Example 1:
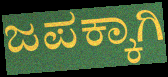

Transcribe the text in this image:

ಜಪಕ್ಕಾಗಿ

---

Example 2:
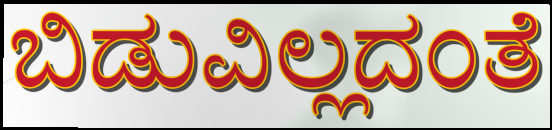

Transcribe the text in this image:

ಬಿಡುವಿಲ್ಲದಂತೆ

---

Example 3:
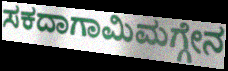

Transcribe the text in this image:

ಸಕದಾಗಾಮಿಮಗ್ಗೇನ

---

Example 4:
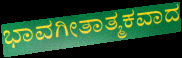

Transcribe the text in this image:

ಭಾವಗೀತಾತ್ಮಕವಾದ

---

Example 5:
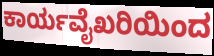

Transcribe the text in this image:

ಕಾರ್ಯವೈಖರಿಯಿಂದ